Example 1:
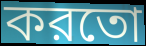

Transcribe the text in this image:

করতো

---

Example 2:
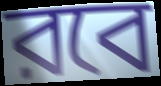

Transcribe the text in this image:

রবে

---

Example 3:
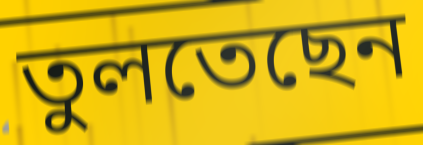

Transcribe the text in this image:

তুলতেছেন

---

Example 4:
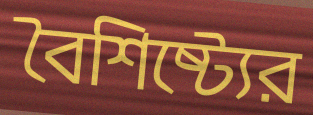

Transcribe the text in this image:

বৈশিষ্ট্যের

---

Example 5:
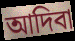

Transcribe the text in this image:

আদিবা